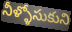
నీళ్ళోసుకుని